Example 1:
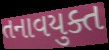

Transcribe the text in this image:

તનાવયુક્ત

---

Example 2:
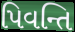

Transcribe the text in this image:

પિવન્તિ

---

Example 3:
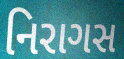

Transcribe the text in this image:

નિરાગસ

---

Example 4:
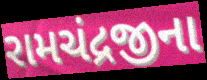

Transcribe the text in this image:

રામચંદ્રજીના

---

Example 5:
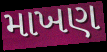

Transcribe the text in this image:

માખણ